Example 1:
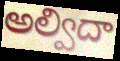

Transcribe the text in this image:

అల్విదా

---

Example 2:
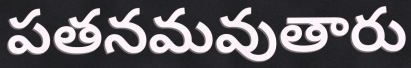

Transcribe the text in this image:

పతనమవుతారు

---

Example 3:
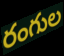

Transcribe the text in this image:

రంగుల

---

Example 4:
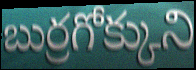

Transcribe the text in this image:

బుర్రగోక్కుని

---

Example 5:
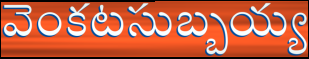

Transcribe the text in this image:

వెంకటసుబ్బయ్య